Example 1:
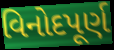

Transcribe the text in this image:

વિનોદપૂર્ણ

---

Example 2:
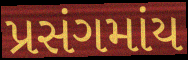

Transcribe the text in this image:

પ્રસંગમાંય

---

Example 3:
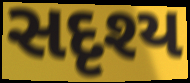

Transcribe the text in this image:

સદૃશ્ય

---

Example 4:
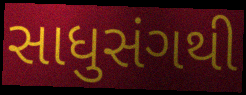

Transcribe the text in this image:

સાધુસંગથી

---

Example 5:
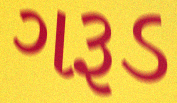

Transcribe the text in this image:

ગરૂડ